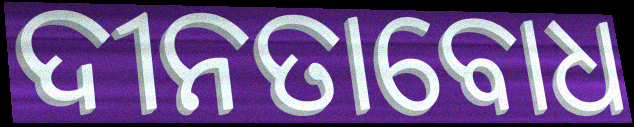
ଦୀନତାବୋଧ